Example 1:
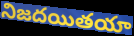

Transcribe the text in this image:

నిజదయితయా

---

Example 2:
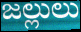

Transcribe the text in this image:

జల్లులు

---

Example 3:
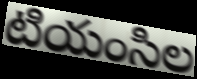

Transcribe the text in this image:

టియంసిల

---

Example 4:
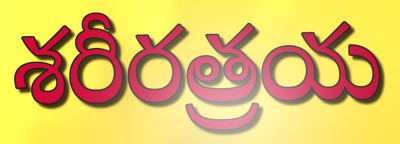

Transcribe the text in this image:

శరీరత్రయ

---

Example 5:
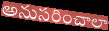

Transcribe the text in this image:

అనుసరించాలా